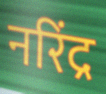
नरिंद्र